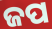
ଜପ